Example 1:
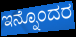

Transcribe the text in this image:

ಇನ್ನೊಂದರ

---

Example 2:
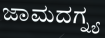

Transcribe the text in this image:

ಜಾಮದಗ್ನ್ಯ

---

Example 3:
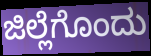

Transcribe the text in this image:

ಜಿಲ್ಲೆಗೊಂದು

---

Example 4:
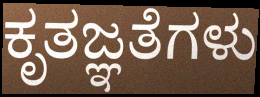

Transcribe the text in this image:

ಕೃತಜ್ಞತೆಗಳು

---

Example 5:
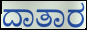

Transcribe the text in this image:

ದಾತಾರ